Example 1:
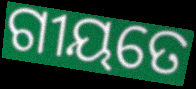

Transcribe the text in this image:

ଗୀୟତେ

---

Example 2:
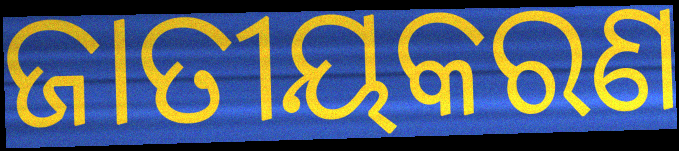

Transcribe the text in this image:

ଜାତୀୟକରଣ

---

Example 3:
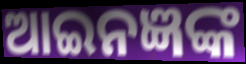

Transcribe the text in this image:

ଆଇନଜ୍ଞଙ୍କ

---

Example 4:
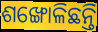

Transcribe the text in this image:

ଶଙ୍ଖୋଳିଛନ୍ତି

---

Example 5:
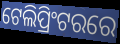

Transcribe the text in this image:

ଟେଲିପ୍ରିଂଟରରେ